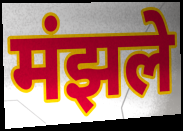
मंझले